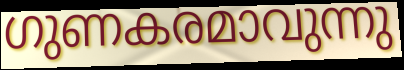
ഗുണകരമാവുന്നു